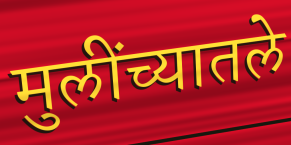
मुलींच्यातले